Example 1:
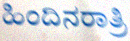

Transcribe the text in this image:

ಹಿಂದಿನರಾತ್ರಿ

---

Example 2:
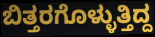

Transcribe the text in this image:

ಬಿತ್ತರಗೊಳ್ಳುತ್ತಿದ್ದ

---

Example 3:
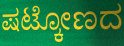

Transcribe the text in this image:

ಷಟ್ಕೋಣದ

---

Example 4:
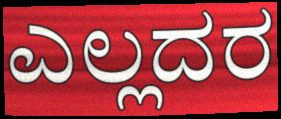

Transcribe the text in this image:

ಎಲ್ಲದರ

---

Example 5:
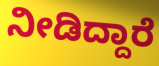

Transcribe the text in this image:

ನೀಡಿದ್ದಾರೆ